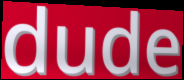
dude